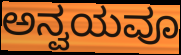
ಅನ್ವಯವೂ